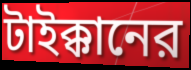
টাইক্কানের